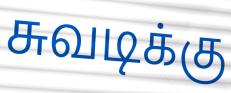
சுவடிக்கு